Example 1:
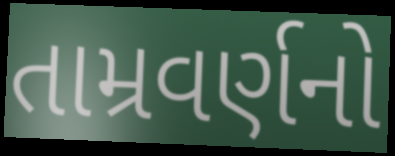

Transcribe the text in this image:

તામ્રવર્ણનો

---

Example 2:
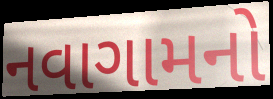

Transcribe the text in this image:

નવાગામનો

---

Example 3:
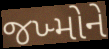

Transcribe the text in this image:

જખ્મોને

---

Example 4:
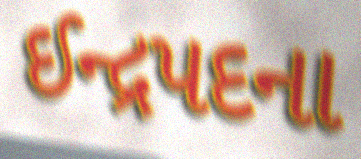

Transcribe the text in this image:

ઈન્દ્રપદના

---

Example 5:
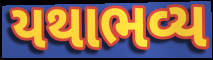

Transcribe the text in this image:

યથાભવ્ય